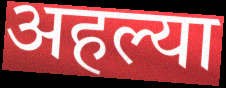
अहल्या